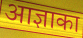
आज्ञाका